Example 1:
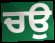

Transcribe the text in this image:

ਚਉ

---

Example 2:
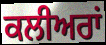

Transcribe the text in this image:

ਕਲੀਅਰਾਂ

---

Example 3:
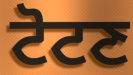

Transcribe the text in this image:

ਟੋਟਣ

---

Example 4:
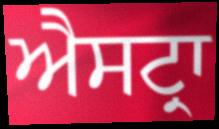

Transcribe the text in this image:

ਐਸਟ੍ਰਾ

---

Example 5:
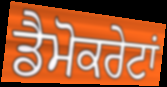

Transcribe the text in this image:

ਡੈਮੋਕਰੇਟਾਂ